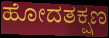
ಹೋದತಕ್ಷಣ